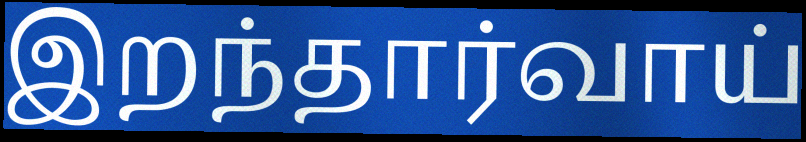
இறந்தார்வாய்